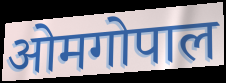
ओमगोपाल